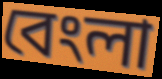
বেংলা